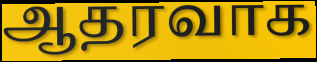
ஆதரவாக